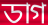
ডাগ